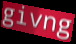
givng